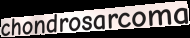
chondrosarcoma